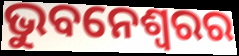
ଭୁବନେଶ୍ଵରର